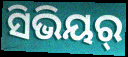
ସିଭିୟର୍